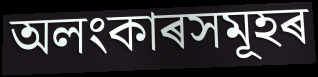
অলংকাৰসমূহৰ